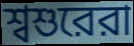
শ্বশুরেরা